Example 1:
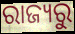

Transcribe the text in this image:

ରାଜ୍ୟରୁ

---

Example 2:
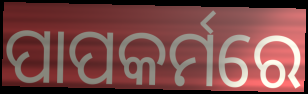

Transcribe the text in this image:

ପାପକର୍ମରେ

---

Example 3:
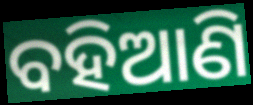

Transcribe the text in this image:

ବହିଆଣି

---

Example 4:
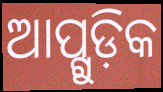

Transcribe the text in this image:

ଆପ୍ଗୁଡ଼ିକ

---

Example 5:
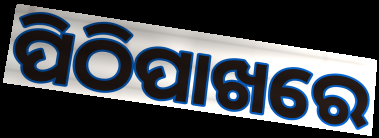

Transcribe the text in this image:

ପିଠିପାଖରେ